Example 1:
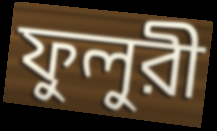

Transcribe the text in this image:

ফুলুরী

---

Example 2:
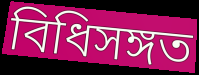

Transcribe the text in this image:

বিধিসঙ্গত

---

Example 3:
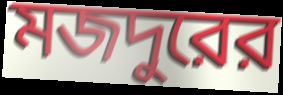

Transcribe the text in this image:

মজদুরের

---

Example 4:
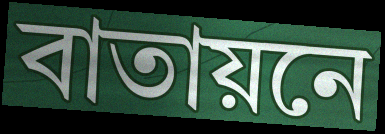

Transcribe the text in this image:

বাতায়নে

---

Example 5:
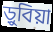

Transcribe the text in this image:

ড়ুবিয়া